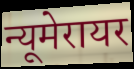
न्यूमेरायर